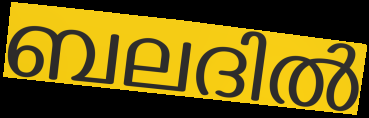
ബലദിൽ